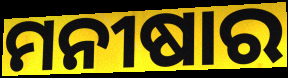
ମନୀଷାର